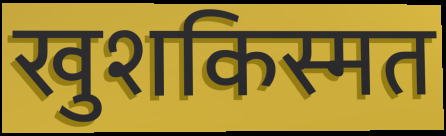
खुशकिस्मत